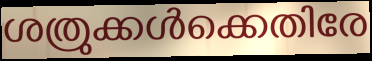
ശത്രുക്കൾക്കെതിരേ